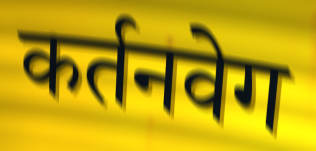
कर्तनवेग